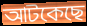
আটকেছে